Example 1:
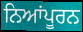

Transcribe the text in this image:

ਨਿਆਂਪੂਰਨ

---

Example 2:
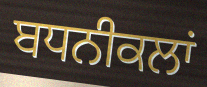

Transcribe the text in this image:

ਬਧਨੀਕਲਾਂ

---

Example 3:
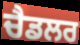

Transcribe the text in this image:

ਚੈਡਲਰ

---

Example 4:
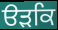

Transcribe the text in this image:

ੳੜਕਿ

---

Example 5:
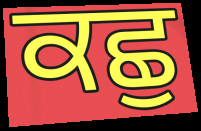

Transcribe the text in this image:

ਕਛੁ